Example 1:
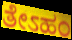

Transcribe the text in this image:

ತೇಽಹಂ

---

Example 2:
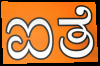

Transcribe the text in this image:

ಐತೆ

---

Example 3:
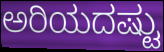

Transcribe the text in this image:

ಅರಿಯದಷ್ಟು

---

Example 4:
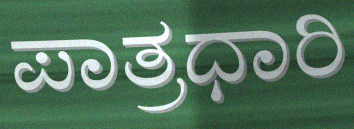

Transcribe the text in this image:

ಪಾತ್ರಧಾರಿ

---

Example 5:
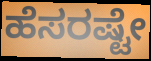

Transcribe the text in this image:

ಹೆಸರಷ್ಟೇ